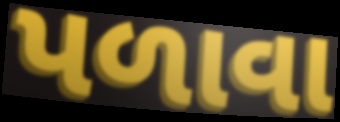
પળાવા